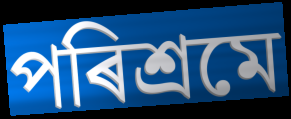
পৰিশ্ৰমে